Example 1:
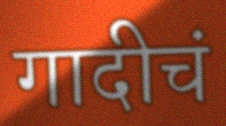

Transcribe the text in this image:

गादीचं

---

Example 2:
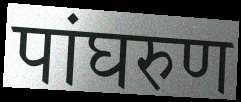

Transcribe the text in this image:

पांघरुण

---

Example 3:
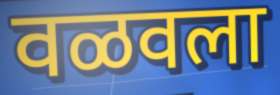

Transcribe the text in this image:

वळवला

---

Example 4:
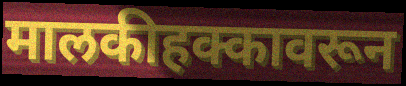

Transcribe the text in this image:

मालकीहक्कावरून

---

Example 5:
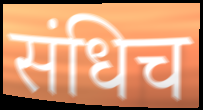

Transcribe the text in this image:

संधिच